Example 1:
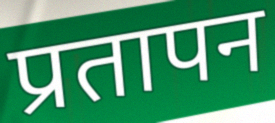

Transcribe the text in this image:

प्रतापन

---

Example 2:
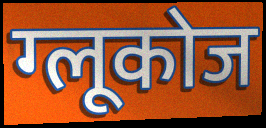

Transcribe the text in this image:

ग्लूकोज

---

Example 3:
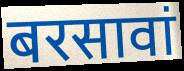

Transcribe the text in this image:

बरसावां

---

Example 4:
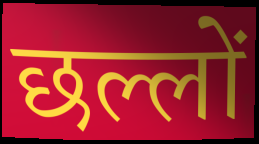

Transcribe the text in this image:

छल्लों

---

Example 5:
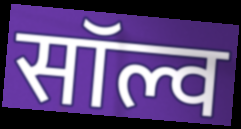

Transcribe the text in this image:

सॉल्व